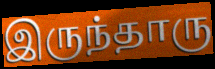
இருந்தாரு